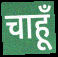
चाहूँ